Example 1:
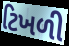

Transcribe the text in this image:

ટિખળી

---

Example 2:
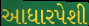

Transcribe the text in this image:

આધારપેશી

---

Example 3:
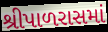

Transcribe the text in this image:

શ્રીપાળરાસમાં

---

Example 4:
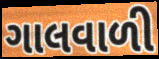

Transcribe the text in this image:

ગાલવાળી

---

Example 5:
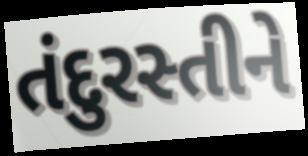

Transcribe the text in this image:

તંદુરસ્તીને